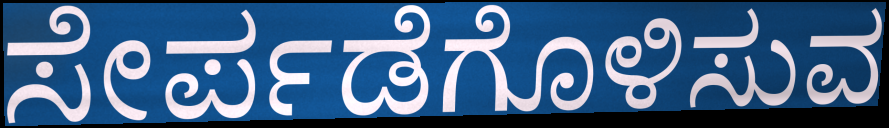
ಸೇರ್ಪಡೆಗೊಳಿಸುವ